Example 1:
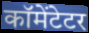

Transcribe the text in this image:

कॉमेंटेटर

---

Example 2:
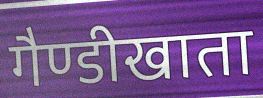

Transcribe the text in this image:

गैण्डीखाता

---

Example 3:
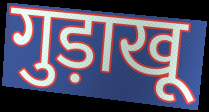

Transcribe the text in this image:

गुड़ाखू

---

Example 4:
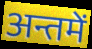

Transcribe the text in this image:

अन्तमें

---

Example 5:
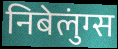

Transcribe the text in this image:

निबेलुंग्स